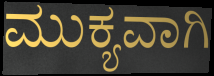
ಮುಕ್ಯವಾಗಿ